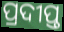
ପ୍ରଦୀପ୍ତ